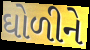
ઘોળીને